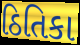
ઠિતિકા